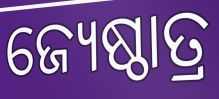
ଜ୍ୟେଷ୍ଠାତ୍ର